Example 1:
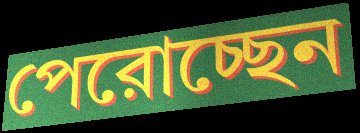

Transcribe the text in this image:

পেরোচ্ছেন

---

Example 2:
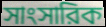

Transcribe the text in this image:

সাংসারিক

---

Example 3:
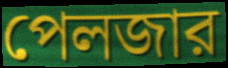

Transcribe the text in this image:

পেলজার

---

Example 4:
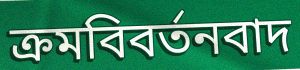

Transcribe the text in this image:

ক্রমবিবর্তনবাদ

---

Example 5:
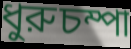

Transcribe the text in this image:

ধুরুচম্পা